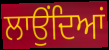
ਲਾਉਂਦਿਆਂ